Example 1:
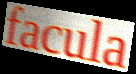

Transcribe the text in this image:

facula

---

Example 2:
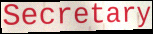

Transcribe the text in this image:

Secretary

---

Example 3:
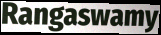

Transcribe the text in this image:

Rangaswamy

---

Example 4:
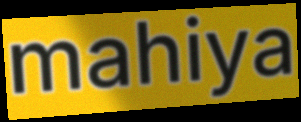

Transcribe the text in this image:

mahiya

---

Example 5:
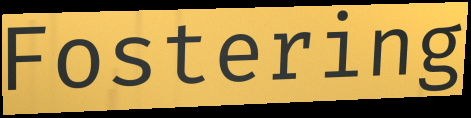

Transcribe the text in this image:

Fostering